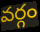
వర్గం